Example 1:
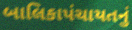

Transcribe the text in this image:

બાલિકાપંચાયતનું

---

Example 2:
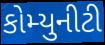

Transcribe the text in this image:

કોમ્યુનીટી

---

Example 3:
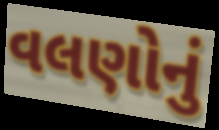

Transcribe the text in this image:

વલણોનું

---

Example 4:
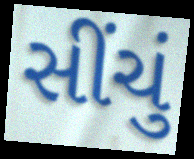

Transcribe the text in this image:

સીંચું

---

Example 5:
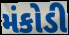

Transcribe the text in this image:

મંકોડી